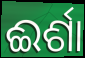
ଈର୍ଶା